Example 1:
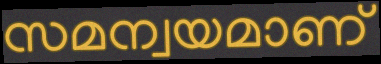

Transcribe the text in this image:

സമന്വയമാണ്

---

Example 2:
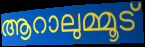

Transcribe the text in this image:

ആറാലുമ്മൂട്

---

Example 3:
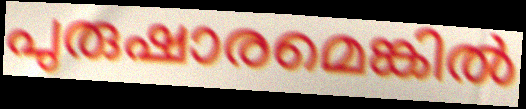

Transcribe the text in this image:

പുരുഷാരമെങ്കിൽ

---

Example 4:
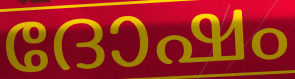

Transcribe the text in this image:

ദോഷം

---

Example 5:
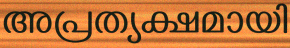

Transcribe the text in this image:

അപ്രത്യക്ഷമായി